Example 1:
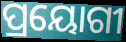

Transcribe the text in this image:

ପ୍ରୟୋଗୀ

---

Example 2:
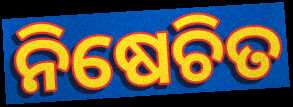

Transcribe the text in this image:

ନିଷେଚିତ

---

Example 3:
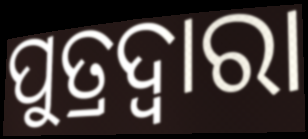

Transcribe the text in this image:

ପୁତ୍ରଦ୍ୱାରା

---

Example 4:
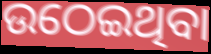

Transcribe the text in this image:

ଉଠେଇଥିବା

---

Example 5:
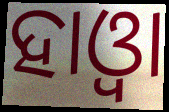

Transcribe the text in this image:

ହାଓ୍ୱା